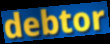
debtor